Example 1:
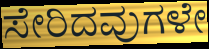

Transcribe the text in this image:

ಸೇರಿದವುಗಳೇ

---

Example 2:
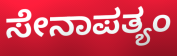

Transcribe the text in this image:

ಸೇನಾಪತ್ಯಂ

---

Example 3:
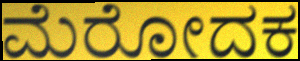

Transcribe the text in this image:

ಮೆರೋದಕ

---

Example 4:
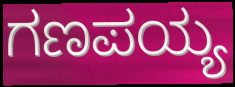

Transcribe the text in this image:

ಗಣಪಯ್ಯ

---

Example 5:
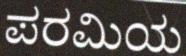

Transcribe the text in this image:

ಪರಮಿಯ